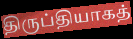
திருப்தியாகத்